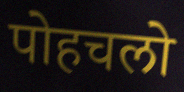
पोहचलो